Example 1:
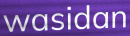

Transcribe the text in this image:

wasidan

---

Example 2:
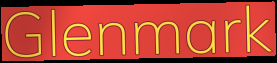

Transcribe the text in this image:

Glenmark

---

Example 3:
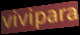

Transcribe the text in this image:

vivipara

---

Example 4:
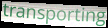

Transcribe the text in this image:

transporting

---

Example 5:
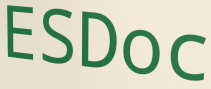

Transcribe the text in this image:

ESDoc